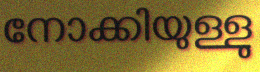
നോക്കിയുള്ളു